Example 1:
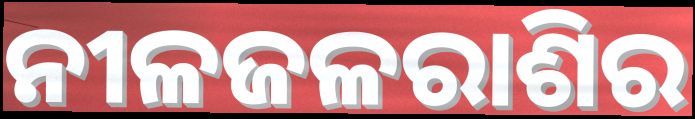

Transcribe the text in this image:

ନୀଳଜଳରାଶିର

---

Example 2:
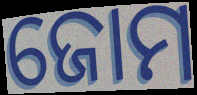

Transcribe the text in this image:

ଜୋମ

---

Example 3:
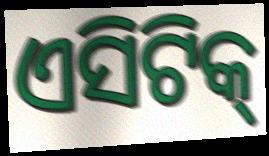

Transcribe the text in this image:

ଏସିଟିକ୍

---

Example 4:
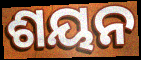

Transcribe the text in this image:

ଶୟନ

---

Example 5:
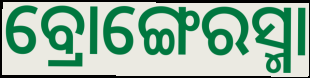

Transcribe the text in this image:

ବ୍ରୋଙ୍ଗେରସ୍ମା